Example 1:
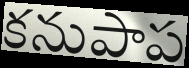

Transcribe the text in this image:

కనుపాప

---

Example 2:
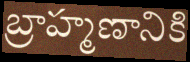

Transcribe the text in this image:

బ్రాహ్మణానికి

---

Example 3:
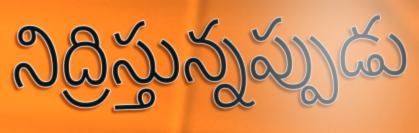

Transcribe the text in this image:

నిద్రిస్తున్నప్పుడు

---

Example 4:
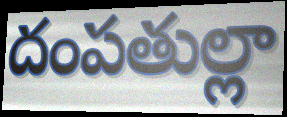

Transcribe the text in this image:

దంపతుల్లా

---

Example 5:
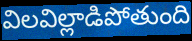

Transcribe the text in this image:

విలవిల్లాడిపోతుంది